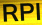
RPI